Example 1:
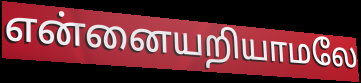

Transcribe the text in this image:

என்னையறியாமலே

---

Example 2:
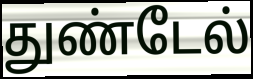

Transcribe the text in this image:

துண்டேல்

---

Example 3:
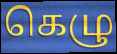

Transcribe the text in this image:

கெழு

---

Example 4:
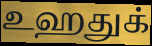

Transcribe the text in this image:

உஹதுக்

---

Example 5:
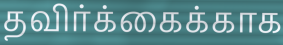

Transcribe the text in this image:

தவிர்க்கைக்காக